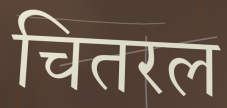
चितरल